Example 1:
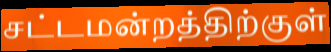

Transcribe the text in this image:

சட்டமன்றத்திற்குள்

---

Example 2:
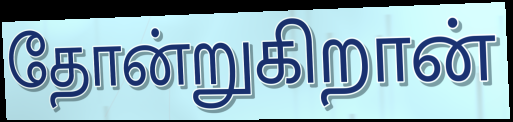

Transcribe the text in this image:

தோன்றுகிறான்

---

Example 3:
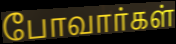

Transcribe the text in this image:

போவார்கள்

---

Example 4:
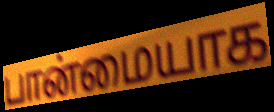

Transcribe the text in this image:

பான்மையாக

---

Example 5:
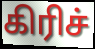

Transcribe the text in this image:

கிரிச்